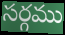
సర్గము